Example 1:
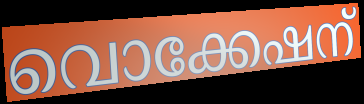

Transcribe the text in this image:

വൊക്കേഷന്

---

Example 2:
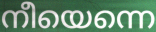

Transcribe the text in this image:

നീയെന്നെ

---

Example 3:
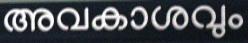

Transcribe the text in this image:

അവകാശവും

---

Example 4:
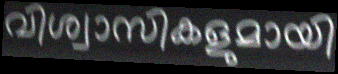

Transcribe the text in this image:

വിശ്വാസികളുമായി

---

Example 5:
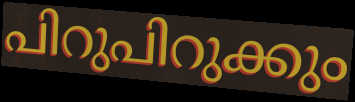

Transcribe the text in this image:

പിറുപിറുക്കും